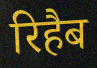
रिहैब